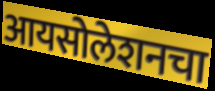
आयसोलेशनचा